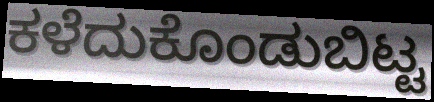
ಕಳೆದುಕೊಂಡುಬಿಟ್ಟ